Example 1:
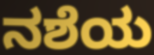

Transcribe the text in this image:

ನಶೆಯ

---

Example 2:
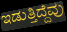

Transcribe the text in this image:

ಇಡುತ್ತಿದ್ದೆವು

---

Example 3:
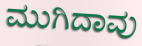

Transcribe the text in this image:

ಮುಗಿದಾವು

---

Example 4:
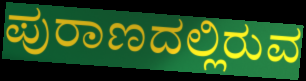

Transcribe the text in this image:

ಪುರಾಣದಲ್ಲಿರುವ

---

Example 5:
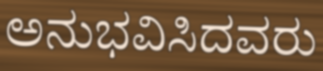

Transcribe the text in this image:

ಅನುಭವಿಸಿದವರು